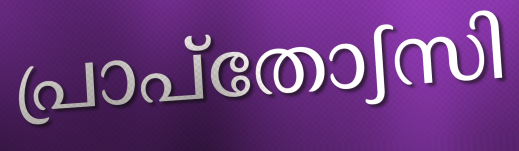
പ്രാപ്തോഽസി